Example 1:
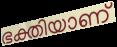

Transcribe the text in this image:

ഭക്തിയാണ്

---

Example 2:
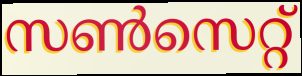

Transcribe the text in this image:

സൺസെറ്റ്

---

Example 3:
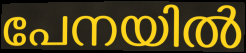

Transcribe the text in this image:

പേനയിൽ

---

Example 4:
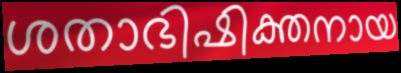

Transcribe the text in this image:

ശതാഭിഷിക്തനായ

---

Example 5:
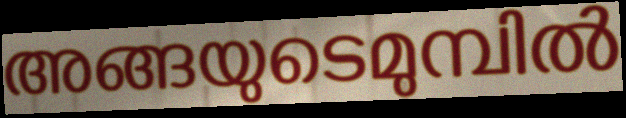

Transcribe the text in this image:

അങ്ങയുടെമുമ്പിൽ